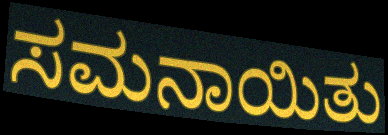
ಸಮನಾಯಿತು